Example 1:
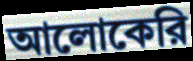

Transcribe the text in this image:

আলোকেরি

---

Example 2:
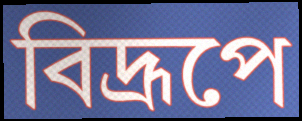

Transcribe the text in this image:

বিদ্রূপে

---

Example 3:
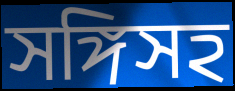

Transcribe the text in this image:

সঙ্গিসহ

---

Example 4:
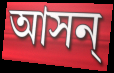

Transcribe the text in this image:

আসন্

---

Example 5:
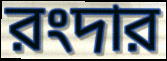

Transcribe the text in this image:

রংদার